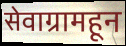
सेवाग्रामहून